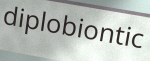
diplobiontic